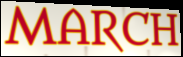
MARCH